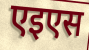
एइएस